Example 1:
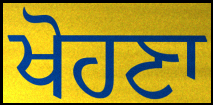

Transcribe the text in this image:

ਖੋਹਣਾ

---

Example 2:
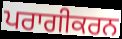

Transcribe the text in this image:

ਪਰਾਗੀਕਰਨ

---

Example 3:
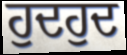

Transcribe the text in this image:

ਹੁਦਹੁਦ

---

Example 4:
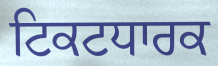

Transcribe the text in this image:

ਟਿਕਟਧਾਰਕ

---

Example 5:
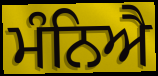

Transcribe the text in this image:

ਮੰਨਿਐ